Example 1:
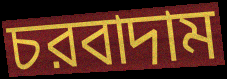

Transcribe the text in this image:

চরবাদাম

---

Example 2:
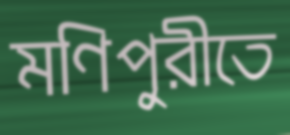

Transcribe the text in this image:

মণিপুরীতে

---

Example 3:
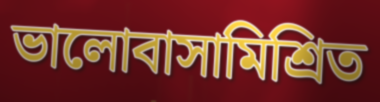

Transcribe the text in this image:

ভালোবাসামিশ্রিত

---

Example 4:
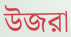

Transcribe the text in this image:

উজরা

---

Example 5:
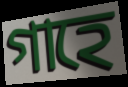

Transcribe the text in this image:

গাহে